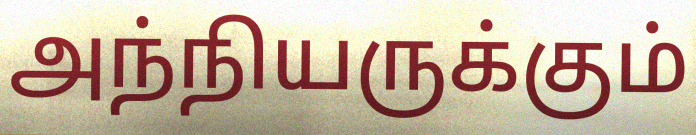
அந்நியருக்கும்